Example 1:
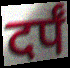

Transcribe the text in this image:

दर्पं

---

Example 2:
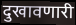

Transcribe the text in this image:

दुखावणारी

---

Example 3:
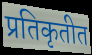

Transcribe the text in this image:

प्रतिकृतीत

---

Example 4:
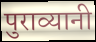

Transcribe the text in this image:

पुराव्यानी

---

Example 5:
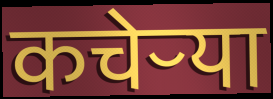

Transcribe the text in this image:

कचेऱ्या